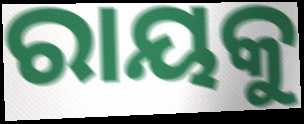
ରାୟକୁ